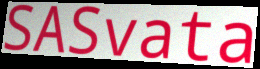
SASvata